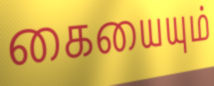
கையையும்